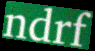
ndrf